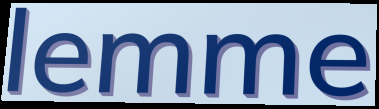
lemme